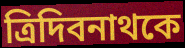
ত্রিদিবনাথকে